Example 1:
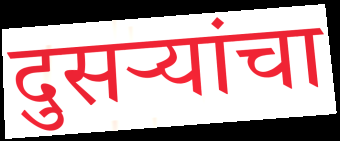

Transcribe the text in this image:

दुसऱ्यांचा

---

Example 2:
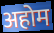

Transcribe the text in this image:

अहोम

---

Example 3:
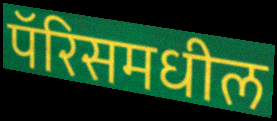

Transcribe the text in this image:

पॅरिसमधील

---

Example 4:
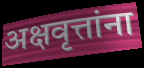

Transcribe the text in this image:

अक्षवृत्तांना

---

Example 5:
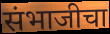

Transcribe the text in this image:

संभाजीचा